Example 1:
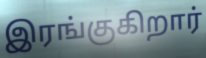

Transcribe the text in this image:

இரங்குகிறார்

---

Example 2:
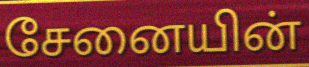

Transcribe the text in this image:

சேனையின்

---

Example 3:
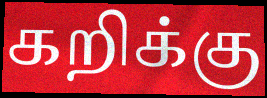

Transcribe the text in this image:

கறிக்கு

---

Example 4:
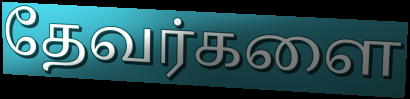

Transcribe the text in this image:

தேவர்களை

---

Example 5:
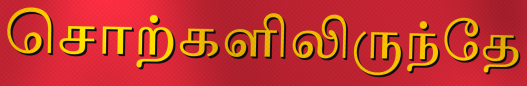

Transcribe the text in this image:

சொற்களிலிருந்தே